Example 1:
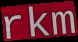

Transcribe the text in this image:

rkm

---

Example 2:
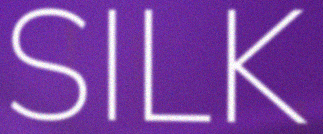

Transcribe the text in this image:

SILK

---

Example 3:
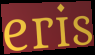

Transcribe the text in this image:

eris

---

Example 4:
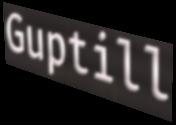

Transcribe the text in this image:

Guptill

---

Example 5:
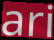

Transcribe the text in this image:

ari